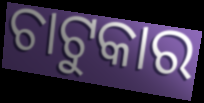
ଚାଟୁକାର